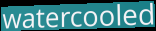
watercooled